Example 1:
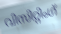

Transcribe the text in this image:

വിസിറ്റിംഗ്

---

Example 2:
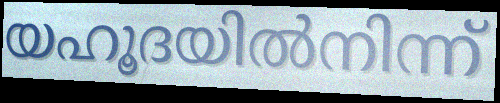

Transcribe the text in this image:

യഹൂദയിൽനിന്ന്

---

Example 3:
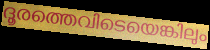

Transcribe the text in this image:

ദൂരത്തെവിടെയെങ്കിലും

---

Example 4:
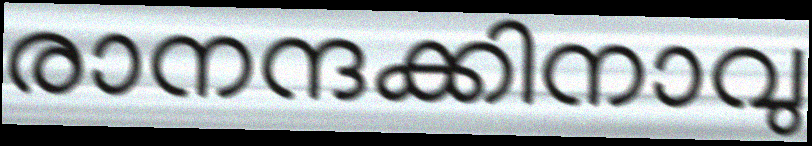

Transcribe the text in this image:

രാനന്ദക്കിനാവു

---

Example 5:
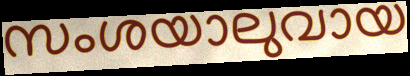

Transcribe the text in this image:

സംശയാലുവായ